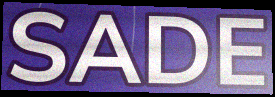
SADE